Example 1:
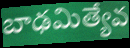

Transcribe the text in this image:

బాఢమిత్యేవ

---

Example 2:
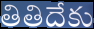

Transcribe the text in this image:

తితిదేకు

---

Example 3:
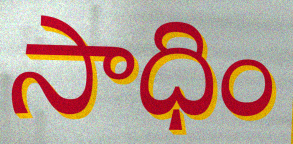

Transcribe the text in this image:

సాధిం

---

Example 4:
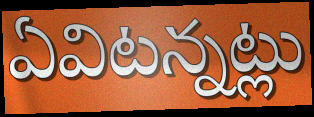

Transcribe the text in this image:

ఏవిటన్నట్లు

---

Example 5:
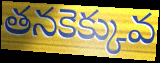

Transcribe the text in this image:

తనకెక్కువ